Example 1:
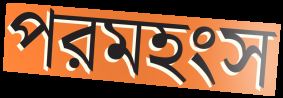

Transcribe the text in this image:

পরমহংস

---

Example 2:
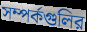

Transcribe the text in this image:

সম্পর্কগুলির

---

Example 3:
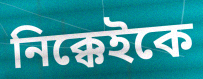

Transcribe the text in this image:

নিক্কেইকে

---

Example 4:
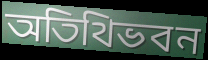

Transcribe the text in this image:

অতিথিভবন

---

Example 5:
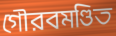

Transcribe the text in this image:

গৌরবমণ্ডিত